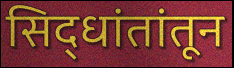
सिद्धांतांतून